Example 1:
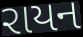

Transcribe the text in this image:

રાયન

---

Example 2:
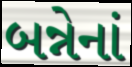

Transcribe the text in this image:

બન્નેનાં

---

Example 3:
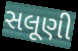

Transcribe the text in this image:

સલૂણી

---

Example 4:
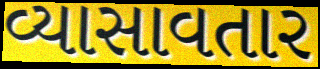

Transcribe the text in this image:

વ્યાસાવતાર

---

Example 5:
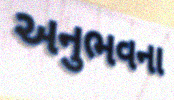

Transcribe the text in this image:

અનુભવના